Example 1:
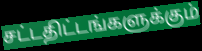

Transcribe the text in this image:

சட்டதிட்டங்களுக்கும்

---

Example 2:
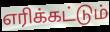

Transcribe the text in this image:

எரிக்கட்டும்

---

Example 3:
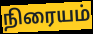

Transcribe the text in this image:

நிரையம்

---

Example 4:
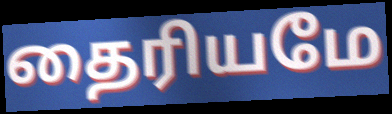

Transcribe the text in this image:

தைரியமே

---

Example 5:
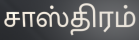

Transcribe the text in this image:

சாஸ்திரம்